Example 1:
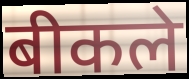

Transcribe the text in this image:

बीकले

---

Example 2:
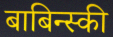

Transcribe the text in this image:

बाबिन्स्की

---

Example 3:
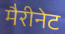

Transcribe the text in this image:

मैरीनेट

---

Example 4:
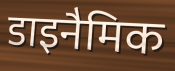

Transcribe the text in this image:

डाइनैमिक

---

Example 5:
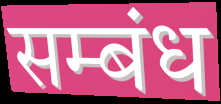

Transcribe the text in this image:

सम्बंध